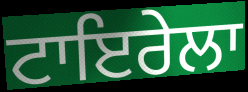
ਟਾਇਰੇਲਾ